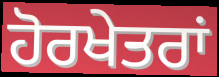
ਹੋਰਖੇਤਰਾਂ